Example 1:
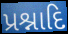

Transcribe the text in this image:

પ્રશ્નાદિ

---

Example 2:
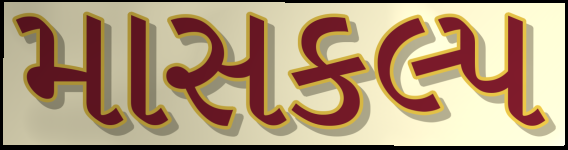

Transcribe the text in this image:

માસકલ્પ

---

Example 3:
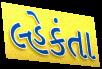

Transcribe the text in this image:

લ્હેકંતા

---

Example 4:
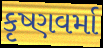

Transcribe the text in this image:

કૃષ્ણવર્મા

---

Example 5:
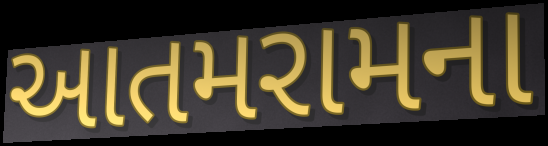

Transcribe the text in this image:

આતમરામના